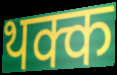
थक्क